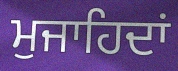
ਮੁਜਾਹਿਦਾਂ